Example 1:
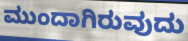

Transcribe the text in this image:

ಮುಂದಾಗಿರುವುದು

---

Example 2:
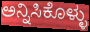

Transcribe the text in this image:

ಅನ್ನಿಸಿಕೊಳ್ಳು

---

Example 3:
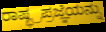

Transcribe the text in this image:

ರಾಷ್ಟ್ರಪ್ರಜ್ಞೆಯನ್ನು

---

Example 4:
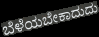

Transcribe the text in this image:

ಬೆಳೆಯಬೇಕಾದುದು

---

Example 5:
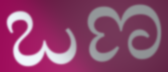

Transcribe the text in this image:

ಒಣ